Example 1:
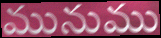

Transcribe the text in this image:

మునుము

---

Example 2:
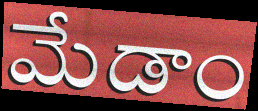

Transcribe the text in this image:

మేడాం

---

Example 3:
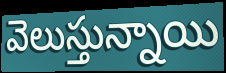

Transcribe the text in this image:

వెలుస్తున్నాయి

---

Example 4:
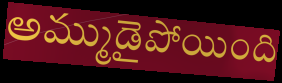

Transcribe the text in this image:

అమ్ముడైపోయింది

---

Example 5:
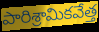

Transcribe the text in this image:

పారిశ్రామికవేత్త